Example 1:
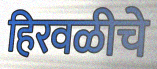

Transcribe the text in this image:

हिरवळीचे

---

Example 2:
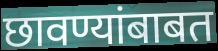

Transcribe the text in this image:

छावण्यांबाबत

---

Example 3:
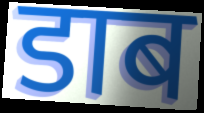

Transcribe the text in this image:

डाब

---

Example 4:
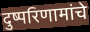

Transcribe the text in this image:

दुष्परिणामांचे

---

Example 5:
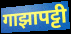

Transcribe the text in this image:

गाझापट्टी